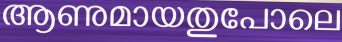
ആണുമായതുപോലെ